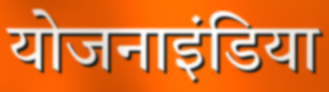
योजनाइंडिया